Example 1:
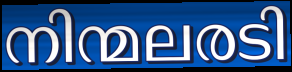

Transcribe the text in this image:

നിന്മലരടി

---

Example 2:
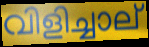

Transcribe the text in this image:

വിളിച്ചാല്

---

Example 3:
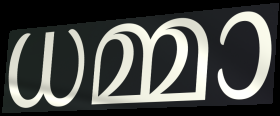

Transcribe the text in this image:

ധമ്മാ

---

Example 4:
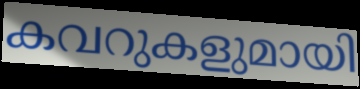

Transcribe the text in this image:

കവറുകളുമായി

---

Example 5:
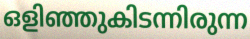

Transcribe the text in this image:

ഒളിഞ്ഞുകിടന്നിരുന്ന